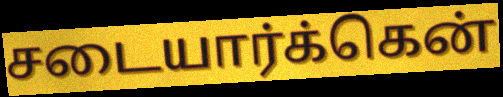
சடையார்க்கென்